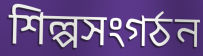
শিল্পসংগঠন